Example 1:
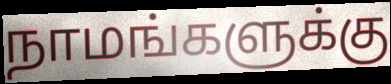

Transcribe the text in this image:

நாமங்களுக்கு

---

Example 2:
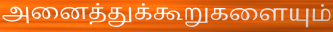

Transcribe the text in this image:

அனைத்துக்கூறுகளையும்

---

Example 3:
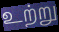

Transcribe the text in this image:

உற்று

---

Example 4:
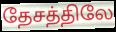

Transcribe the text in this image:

தேசத்திலே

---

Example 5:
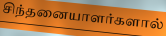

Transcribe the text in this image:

சிந்தனையாளர்களால்